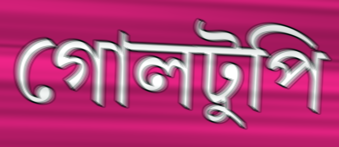
গোলটুপি